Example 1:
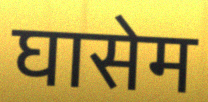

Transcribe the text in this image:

घासेम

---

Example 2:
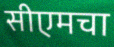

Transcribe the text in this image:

सीएमचा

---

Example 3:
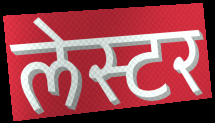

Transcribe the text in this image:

लेस्टर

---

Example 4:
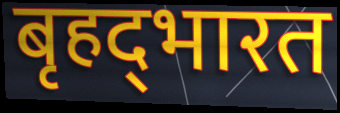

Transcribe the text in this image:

बृहद्भारत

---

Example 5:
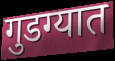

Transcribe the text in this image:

गुडग्यात